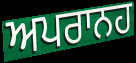
ਅਪਰਾਨਹ